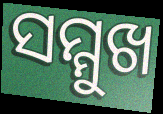
ସମ୍ମୁଖ